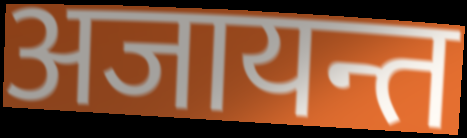
अजायन्त